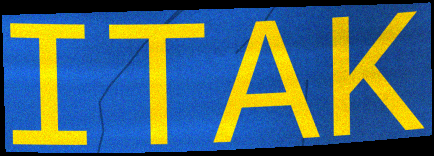
ITAK